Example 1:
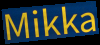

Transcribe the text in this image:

Mikka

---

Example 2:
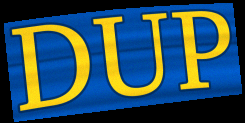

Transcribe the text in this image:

DUP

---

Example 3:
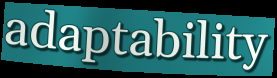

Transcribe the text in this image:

adaptability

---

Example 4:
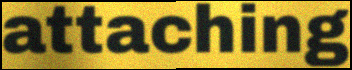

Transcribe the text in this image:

attaching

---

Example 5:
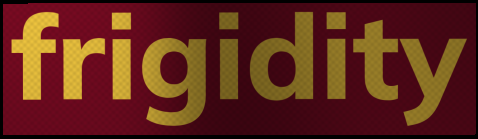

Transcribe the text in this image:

frigidity